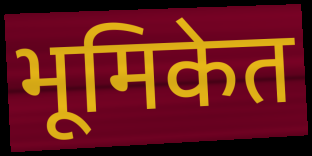
भूमिकेत